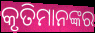
କୃତିମାନଙ୍କର